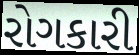
રોગકારી